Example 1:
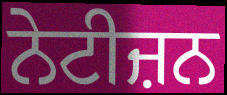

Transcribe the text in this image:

ਨੇਟੀਜ਼ਨ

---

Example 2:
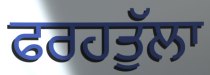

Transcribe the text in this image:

ਫਰਹਤੁੱਲਾ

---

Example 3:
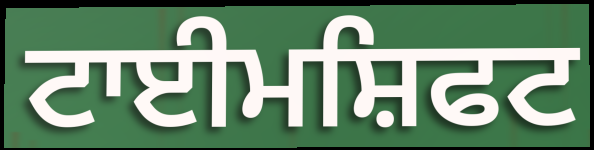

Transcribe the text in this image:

ਟਾਈਮਸ਼ਿਫਟ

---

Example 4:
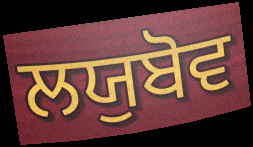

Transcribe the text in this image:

ਲਯੁਬੋਵ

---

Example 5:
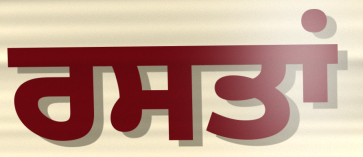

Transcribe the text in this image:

ਰਸਤਾਂ